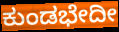
ಕುಂಡಭೇದೀ